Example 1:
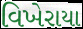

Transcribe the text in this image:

વિખેરાયા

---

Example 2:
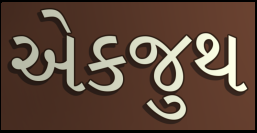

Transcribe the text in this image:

એકજુથ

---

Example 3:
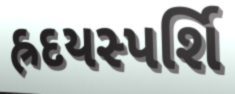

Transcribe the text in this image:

હ્રદયસ્પર્શિ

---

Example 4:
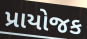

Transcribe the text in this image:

પ્રાયોજક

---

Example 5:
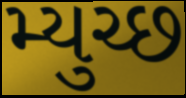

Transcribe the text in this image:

મ્યુચ્છ